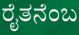
ರೈತನೆಂಬ